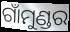
ଗାଁମୁଣ୍ଡର